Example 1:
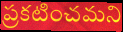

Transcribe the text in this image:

ప్రకటించమని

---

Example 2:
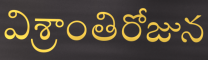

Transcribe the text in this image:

విశ్రాంతిరోజున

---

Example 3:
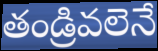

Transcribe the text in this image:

తండ్రివలెనే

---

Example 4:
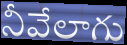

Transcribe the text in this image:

నీవేలాగు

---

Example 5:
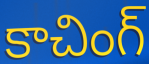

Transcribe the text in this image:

కాచింగ్